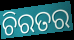
ଚିରତର